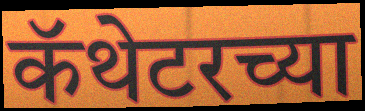
कॅथेटरच्या